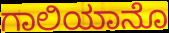
ಗಾಲಿಯಾನೊ